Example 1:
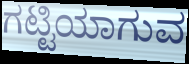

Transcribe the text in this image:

ಗಟ್ಟಿಯಾಗುವ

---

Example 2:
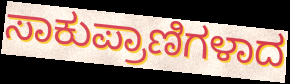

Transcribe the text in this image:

ಸಾಕುಪ್ರಾಣಿಗಳಾದ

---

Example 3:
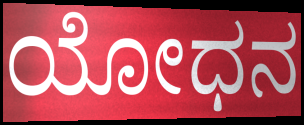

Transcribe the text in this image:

ಯೋಧನ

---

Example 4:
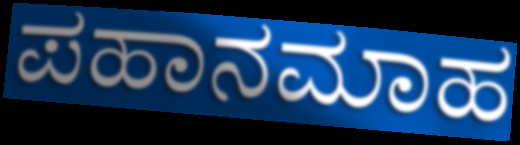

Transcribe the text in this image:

ಪಹಾನಮಾಹ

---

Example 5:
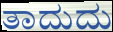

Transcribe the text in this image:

ತಾದುದು